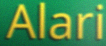
Alari